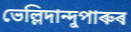
ভেল্লিদান্দুপাৰুৰ